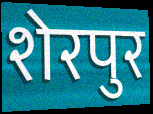
शेरपुर